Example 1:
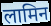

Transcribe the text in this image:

लामिन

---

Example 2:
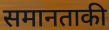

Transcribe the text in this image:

समानताकी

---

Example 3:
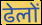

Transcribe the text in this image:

ढेलों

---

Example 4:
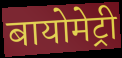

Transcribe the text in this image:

बायोमेट्री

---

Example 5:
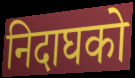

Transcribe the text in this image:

निदाघको